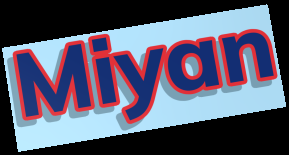
Miyan